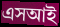
এসআই